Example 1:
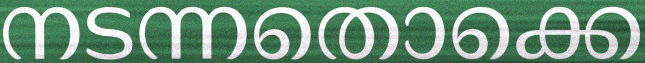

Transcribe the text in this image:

നടന്നതൊക്കെ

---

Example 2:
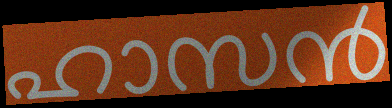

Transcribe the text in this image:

ഹാസൻ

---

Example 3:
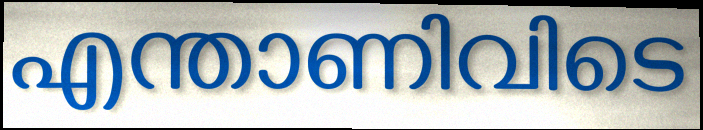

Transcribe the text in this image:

എന്താണിവിടെ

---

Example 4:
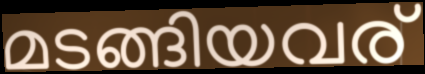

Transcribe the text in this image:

മടങ്ങിയവര്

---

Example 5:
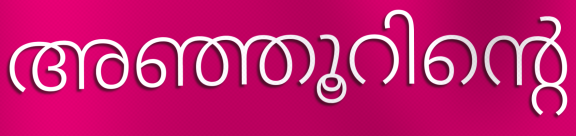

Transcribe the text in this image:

അഞ്ഞൂറിന്റെ